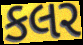
કલર